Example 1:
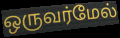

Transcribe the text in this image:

ஒருவர்மேல்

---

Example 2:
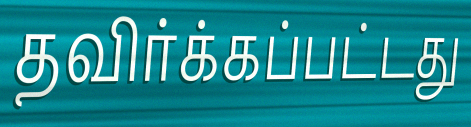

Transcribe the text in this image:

தவிர்க்கப்பட்டது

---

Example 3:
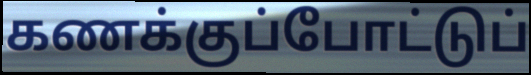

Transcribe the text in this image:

கணக்குப்போட்டுப்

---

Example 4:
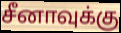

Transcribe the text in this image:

சீனாவுக்கு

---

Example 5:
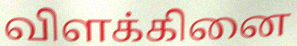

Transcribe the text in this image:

விளக்கினை